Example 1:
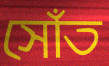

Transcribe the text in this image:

সোঁত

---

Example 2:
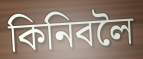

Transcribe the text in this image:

কিনিবলৈ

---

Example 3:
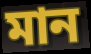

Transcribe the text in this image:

মান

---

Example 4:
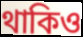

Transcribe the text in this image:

থাকিও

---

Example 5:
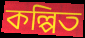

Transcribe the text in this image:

কল্পিত